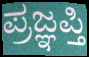
ಪ್ರಜ್ಞಪ್ತಿ